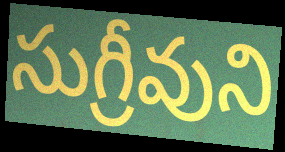
సుగ్రీవుని